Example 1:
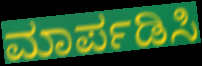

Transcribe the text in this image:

ಮಾರ್ಪಡಿಸಿ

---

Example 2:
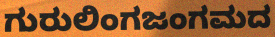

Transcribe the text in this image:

ಗುರುಲಿಂಗಜಂಗಮದ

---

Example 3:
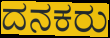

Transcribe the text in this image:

ದನಕರು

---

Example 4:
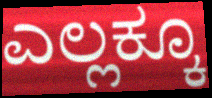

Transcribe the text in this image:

ಎಲ್ಲಕ್ಕೂ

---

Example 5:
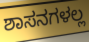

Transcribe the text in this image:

ಶಾಸನಗಳಲ್ಲ